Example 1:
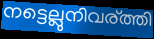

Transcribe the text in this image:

നട്ടെല്ലുനിവര്ത്തി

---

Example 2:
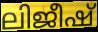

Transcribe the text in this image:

ലിജീഷ്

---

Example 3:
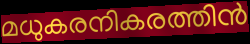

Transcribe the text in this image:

മധുകരനികരത്തിൻ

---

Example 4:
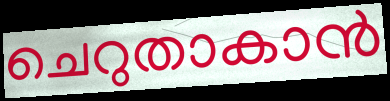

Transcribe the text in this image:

ചെറുതാകാൻ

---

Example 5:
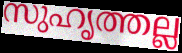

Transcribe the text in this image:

സുഹൃത്തല്ല